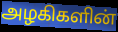
அழகிகளின்